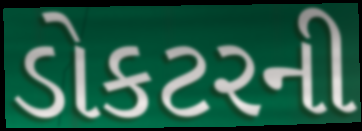
ડોકટરની